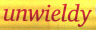
unwieldy